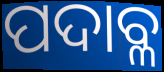
ପଦାବ୍ଳ